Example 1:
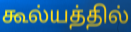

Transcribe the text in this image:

கூல்யத்தில்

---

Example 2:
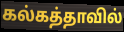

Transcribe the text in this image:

கல்கத்தாவில்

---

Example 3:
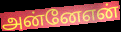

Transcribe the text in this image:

அன்னேஎன்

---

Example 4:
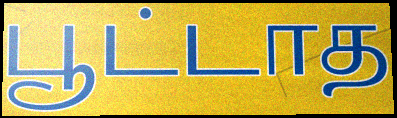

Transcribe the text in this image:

பூட்டாத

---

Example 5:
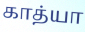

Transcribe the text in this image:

காத்யா